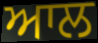
ਆਲ